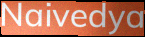
Naivedya